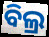
ବିଲ୍ର